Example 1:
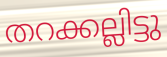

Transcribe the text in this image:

തറക്കല്ലിട്ടു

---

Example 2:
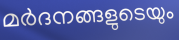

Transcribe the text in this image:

മർദനങ്ങളുടെയും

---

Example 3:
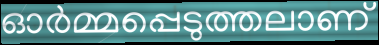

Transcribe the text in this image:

ഓർമ്മപ്പെടുത്തലാണ്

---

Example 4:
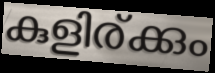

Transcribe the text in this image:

കുളിര്ക്കും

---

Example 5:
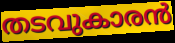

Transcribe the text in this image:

തടവുകാരൻ